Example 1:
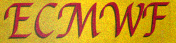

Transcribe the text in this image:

ECMWF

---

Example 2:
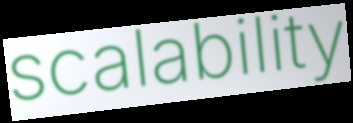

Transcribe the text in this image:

scalability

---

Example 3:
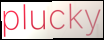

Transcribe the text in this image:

plucky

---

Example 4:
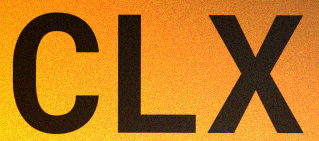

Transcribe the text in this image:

CLX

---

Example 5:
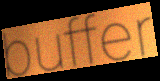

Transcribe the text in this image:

buffer